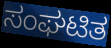
ಸಂಘಟಿತ